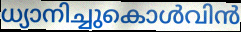
ധ്യാനിച്ചുകൊൾവിൻ